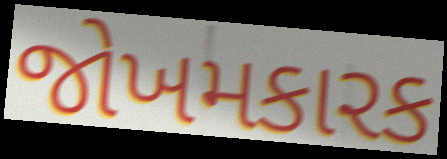
જોખમકારક